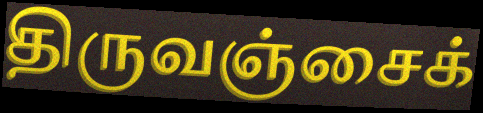
திருவஞ்சைக்